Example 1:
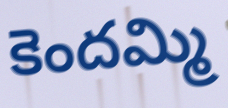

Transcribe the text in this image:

కెందమ్మి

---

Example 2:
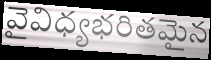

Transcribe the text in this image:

వైవిధ్యభరితమైన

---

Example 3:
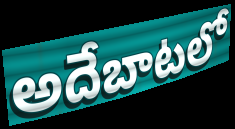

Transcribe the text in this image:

అదేబాటలో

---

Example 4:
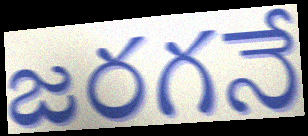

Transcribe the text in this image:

జరగనే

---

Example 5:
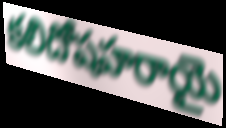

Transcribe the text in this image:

కలిదోషహరాయై